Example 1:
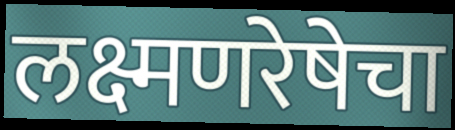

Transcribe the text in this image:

लक्ष्मणरेषेचा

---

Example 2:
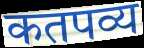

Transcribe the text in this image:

कतपव्य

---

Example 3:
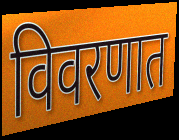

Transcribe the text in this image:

विवरणात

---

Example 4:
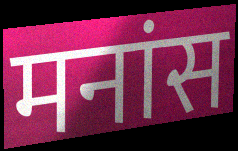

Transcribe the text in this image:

मनांस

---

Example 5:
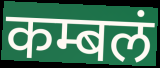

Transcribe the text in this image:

कम्बलं